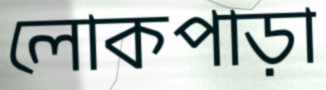
লোকপাড়া